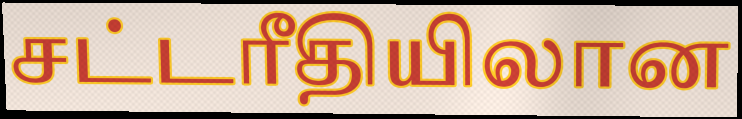
சட்டரீதியிலான